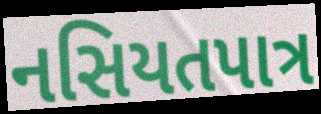
નસિયતપાત્ર